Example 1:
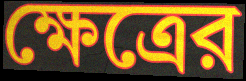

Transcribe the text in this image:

ক্ষেত্রের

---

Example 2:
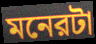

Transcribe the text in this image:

মনেরটা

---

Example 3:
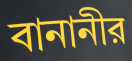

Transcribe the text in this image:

বানানীর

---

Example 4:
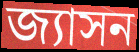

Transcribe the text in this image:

জ্যাসন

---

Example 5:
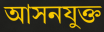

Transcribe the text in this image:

আসনযুক্ত